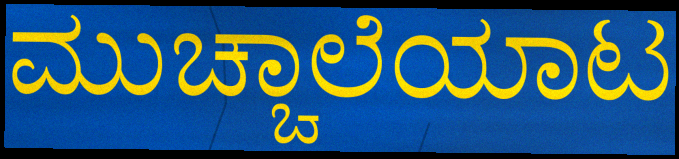
ಮುಚ್ಚಾಲೆಯಾಟ